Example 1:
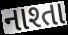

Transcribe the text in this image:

નાશ્તા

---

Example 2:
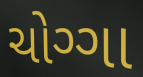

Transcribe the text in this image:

ચોગ્ગા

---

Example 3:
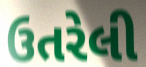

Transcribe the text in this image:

ઉતરેલી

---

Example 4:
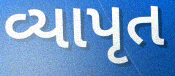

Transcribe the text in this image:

વ્યાપૃત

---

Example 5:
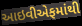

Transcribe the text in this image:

આઇવીએફમાંથી